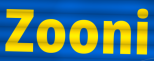
Zooni